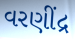
વરણીંદ્ર